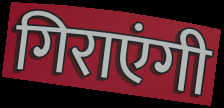
गिराएंगी